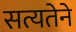
सत्यतेने